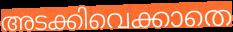
അടക്കിവെക്കാതെ